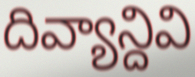
దివ్యాన్దివి